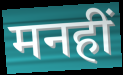
मनहीं